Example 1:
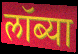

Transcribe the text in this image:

लॉब्या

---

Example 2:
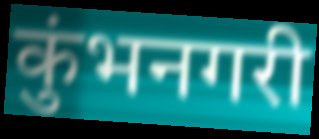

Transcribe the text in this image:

कुंभनगरी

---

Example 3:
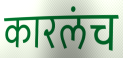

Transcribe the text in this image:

कारलंच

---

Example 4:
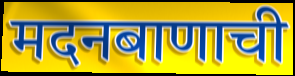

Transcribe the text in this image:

मदनबाणाची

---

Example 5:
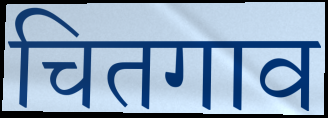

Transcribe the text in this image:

चितगाव